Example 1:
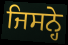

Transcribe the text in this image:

ਜਿਸਨ੍ਹੇ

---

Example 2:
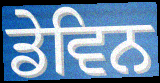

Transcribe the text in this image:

ਡੇਵਿਨ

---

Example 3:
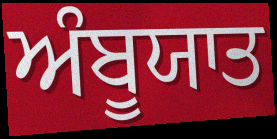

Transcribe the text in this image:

ਅੰਬੂਯਾਤ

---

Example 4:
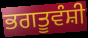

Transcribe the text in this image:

ਭਗਤੂਵੰਸ਼ੀ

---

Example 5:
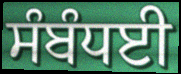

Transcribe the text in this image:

ਸੰਬੰਧਈ